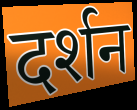
दर्शन